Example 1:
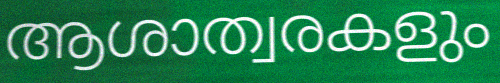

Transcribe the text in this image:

ആശാത്വരകളും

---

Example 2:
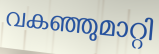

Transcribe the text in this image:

വകഞ്ഞുമാറ്റി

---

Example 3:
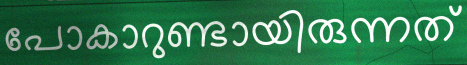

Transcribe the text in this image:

പോകാറുണ്ടായിരുന്നത്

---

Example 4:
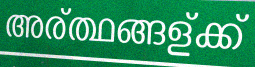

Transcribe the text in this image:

അര്ത്ഥങ്ങള്ക്ക്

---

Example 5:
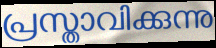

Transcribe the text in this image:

പ്രസ്താവിക്കുന്നു